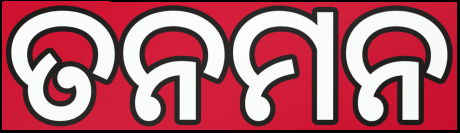
ତନମନ